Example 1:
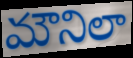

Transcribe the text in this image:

మౌనిలా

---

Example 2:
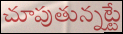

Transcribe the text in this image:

చూపుతున్నట్టే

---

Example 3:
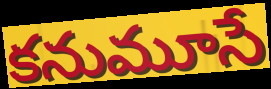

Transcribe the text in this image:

కనుమూసే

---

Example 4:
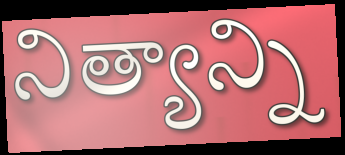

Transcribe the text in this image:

నిత్యాన్ని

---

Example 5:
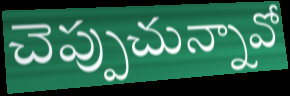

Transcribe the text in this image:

చెప్పుచున్నావో